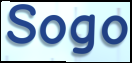
Sogo